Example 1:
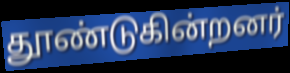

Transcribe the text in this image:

தூண்டுகின்றனர்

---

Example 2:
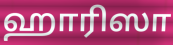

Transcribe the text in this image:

ஹாரிஸா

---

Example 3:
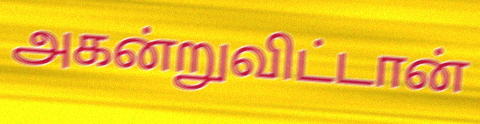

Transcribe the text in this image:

அகன்றுவிட்டான்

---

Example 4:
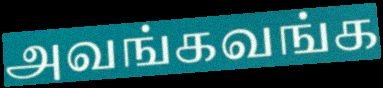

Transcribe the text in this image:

அவங்கவங்க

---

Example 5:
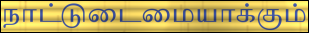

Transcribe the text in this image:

நாட்டுடைமையாக்கும்